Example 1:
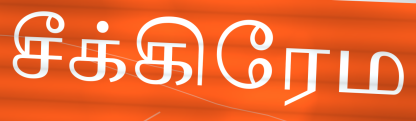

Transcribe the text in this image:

சீக்கிரேம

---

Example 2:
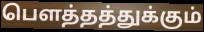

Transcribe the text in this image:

பௌத்தத்துக்கும்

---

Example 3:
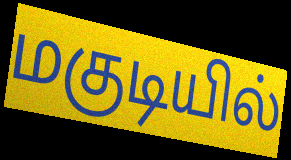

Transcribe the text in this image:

மகுடியில்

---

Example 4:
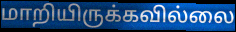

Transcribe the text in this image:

மாறியிருக்கவில்லை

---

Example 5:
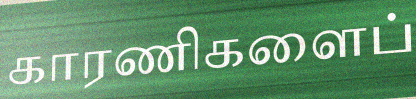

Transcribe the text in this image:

காரணிகளைப்